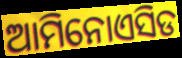
ଆମିନୋଏସିଡ